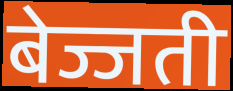
बेज्जती